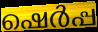
ഷെർപ്പ